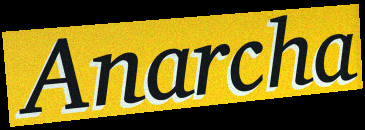
Anarcha